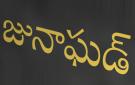
జునాఘడ్